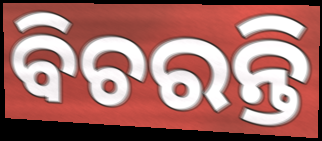
ବିଚରନ୍ତି